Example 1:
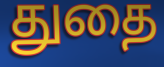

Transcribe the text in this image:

துதை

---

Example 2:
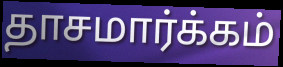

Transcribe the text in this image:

தாசமார்க்கம்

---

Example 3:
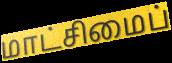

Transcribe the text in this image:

மாட்சிமைப்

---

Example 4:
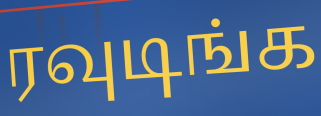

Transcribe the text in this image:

ரவுடிங்க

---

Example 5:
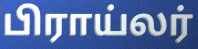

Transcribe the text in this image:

பிராய்லர்